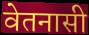
वेतनासी